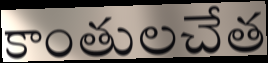
కాంతులచేత